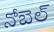
నోబెల్